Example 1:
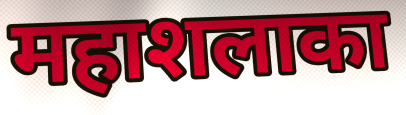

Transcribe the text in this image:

महाशलाका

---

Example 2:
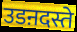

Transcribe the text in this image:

उडऩदस्ते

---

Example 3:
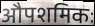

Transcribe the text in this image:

औपशमिकः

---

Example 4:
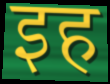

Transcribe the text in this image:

इह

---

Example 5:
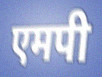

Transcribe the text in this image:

एमपी